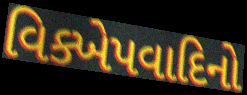
વિક્ખેપવાદિનો